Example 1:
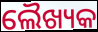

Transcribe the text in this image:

ଲୈଖ୍ୟକ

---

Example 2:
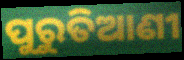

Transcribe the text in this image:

ପୁରୁତିଆଣୀ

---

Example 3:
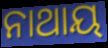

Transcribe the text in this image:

ନାଥାୟ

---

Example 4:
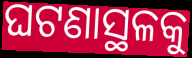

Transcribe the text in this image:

ଘଟଣାସ୍ଥଳକୁ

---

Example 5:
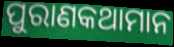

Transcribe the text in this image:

ପୁରାଣକଥାମାନ